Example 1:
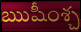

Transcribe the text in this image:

ఋషీంశ్చ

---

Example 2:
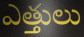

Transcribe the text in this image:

ఎత్తులు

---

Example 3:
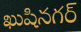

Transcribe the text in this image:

ఖుషినగర్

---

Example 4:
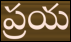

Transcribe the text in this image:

ప్రయ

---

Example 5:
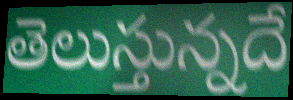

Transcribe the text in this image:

తెలుస్తున్నదే